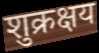
शुक्रक्षय